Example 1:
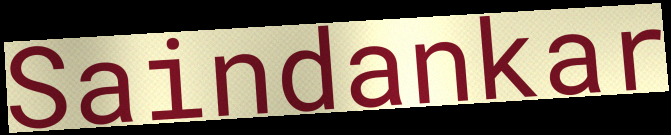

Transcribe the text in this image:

Saindankar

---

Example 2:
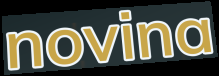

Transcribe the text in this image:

novina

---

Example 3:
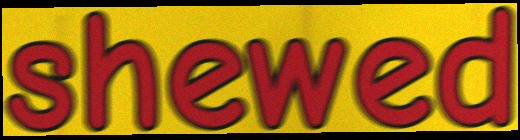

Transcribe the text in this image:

shewed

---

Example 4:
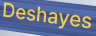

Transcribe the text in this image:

Deshayes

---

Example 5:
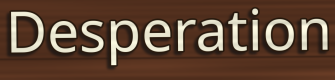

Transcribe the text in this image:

Desperation